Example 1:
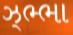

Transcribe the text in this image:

ઝ્ભ્ભા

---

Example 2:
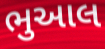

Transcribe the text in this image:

ભુઆલ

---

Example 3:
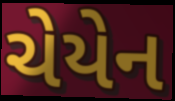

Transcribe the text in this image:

ચેયેન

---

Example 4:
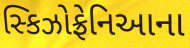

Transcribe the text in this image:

સ્કિઝોફ્રેનિઆના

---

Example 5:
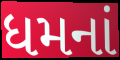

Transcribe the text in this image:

ધમનાં